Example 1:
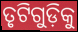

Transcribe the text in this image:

ତୃଟିଗୁଡ଼ିକୁ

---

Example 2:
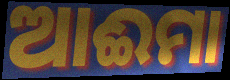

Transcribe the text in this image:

ଆଈମା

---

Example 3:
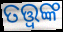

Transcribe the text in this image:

ତତ୍ତ୍ବଙ୍କ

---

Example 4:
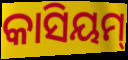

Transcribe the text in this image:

କାସିୟମ୍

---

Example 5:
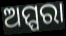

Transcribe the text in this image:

ଅପ୍ପରା